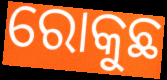
ରୋକୁଛ